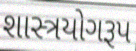
શાસ્ત્રયોગરૂપ